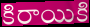
కిరాయికి